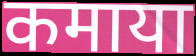
कमाया